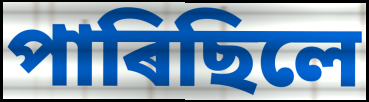
পাৰিছিলে